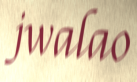
jwalao